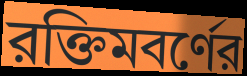
রক্তিমবর্ণের